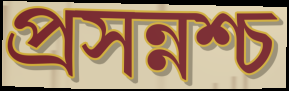
প্রসন্নশ্চ